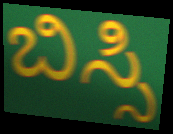
ಬಿಸ್ಸಿ